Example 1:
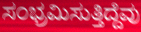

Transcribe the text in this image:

ಸಂಭ್ರಮಿಸುತ್ತಿದ್ದೆವು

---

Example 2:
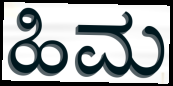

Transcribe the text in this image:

ಹಿಮ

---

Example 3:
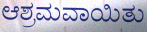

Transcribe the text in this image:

ಆಶ್ರಮವಾಯಿತು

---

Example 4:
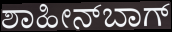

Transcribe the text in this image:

ಶಾಹೀನ್‌ಬಾಗ್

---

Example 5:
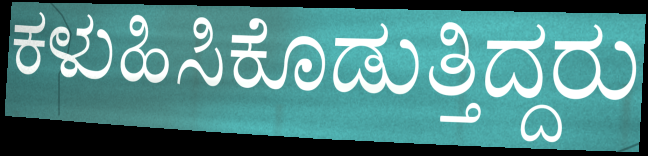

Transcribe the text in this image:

ಕಳುಹಿಸಿಕೊಡುತ್ತಿದ್ದರು